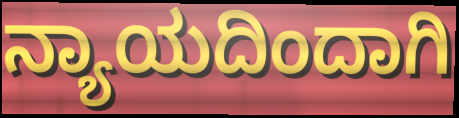
ನ್ಯಾಯದಿಂದಾಗಿ